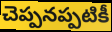
చెప్పనప్పటికీ